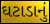
ઘટાડાનું